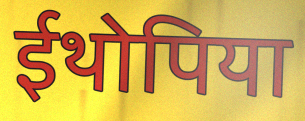
ईथोपिया